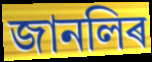
জানলিৰ